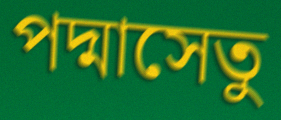
পদ্মাসেতু